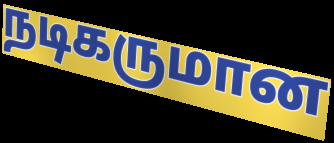
நடிகருமான